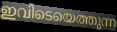
ഇവിടെയെത്തുന്ന